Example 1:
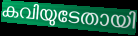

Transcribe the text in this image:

കവിയുടേതായി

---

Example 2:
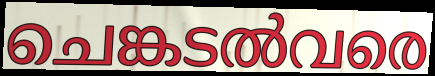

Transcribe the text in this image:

ചെങ്കടൽവരെ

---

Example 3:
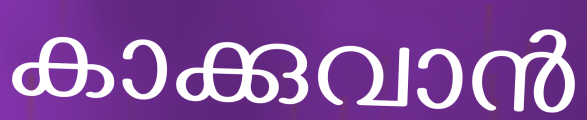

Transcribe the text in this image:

കാക്കുവാൻ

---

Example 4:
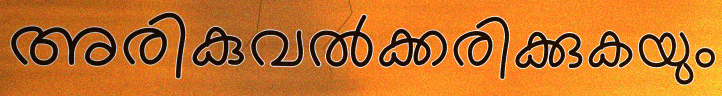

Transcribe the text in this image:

അരികുവൽക്കരിക്കുകയും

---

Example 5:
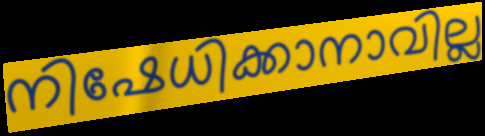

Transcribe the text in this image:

നിഷേധിക്കാനാവില്ല